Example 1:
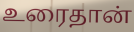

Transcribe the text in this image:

உரைதான்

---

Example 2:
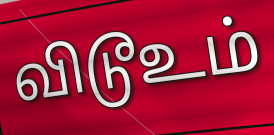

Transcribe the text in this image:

விடூஉம்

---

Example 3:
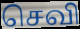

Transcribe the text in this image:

செவி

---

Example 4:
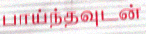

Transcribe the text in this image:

பாய்ந்தவுடன்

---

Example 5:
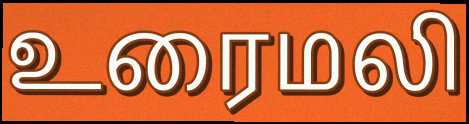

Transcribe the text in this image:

உரைமலி